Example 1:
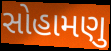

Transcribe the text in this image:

સોહામણુ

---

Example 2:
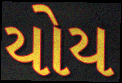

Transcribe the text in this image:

યોય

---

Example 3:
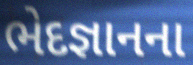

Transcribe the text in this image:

ભેદજ્ઞાનના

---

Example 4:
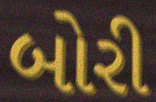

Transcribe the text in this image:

બોરી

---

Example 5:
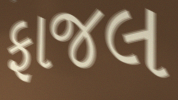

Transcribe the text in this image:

ફાજલ